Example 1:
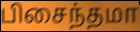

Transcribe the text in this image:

பிசைந்தமா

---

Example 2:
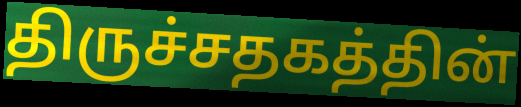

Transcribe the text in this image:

திருச்சதகத்தின்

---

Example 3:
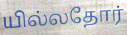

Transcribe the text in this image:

யில்லதோர்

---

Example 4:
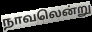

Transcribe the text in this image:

நாவலென்று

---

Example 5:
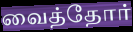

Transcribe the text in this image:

வைத்தோர்